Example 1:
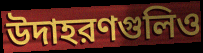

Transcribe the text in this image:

উদাহরণগুলিও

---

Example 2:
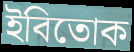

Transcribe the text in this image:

ইবিতোক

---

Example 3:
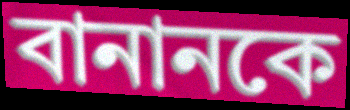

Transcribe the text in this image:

বানানকে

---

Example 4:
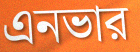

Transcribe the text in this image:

এনভার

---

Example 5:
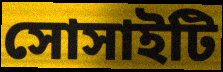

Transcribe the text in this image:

সোসাইটি